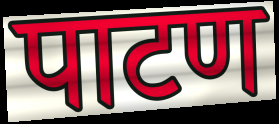
पाटण